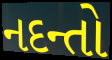
નદન્તો